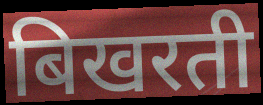
बिखरती